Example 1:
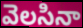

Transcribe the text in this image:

వెలసినా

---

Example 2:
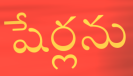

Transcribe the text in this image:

షేర్లను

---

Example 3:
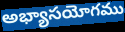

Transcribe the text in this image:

అభ్యాసయోగము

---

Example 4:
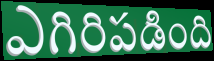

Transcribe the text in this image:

ఎగిరిపడింది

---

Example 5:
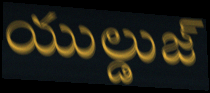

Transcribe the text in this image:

యుల్డుజ్